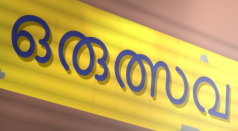
ഒരുത്സവ